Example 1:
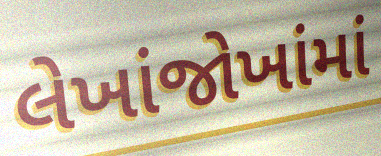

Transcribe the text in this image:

લેખાંજોખાંમાં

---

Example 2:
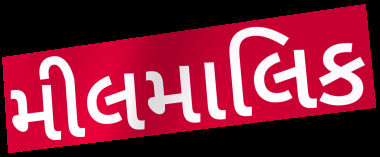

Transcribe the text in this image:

મીલમાલિક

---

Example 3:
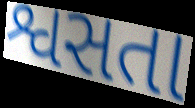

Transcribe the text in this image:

શ્વસતા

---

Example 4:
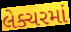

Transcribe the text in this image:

લેક્ચરમાં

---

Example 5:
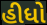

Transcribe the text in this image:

હીધો